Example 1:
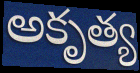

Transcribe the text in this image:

అకృత్య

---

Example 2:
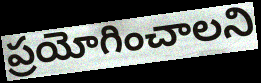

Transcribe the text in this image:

ప్రయోగించాలని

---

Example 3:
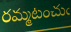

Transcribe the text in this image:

రమ్మటంచుఁ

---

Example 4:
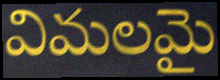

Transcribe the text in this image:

విమలమై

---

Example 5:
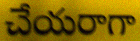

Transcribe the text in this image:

చేయరాగా